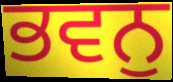
ਭਵਨੁ